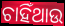
ଚାହିଁଥାଉ